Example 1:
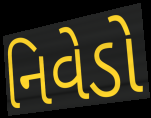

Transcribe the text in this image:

નિવેડો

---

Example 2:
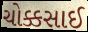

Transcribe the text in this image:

ચોક્કસાઈ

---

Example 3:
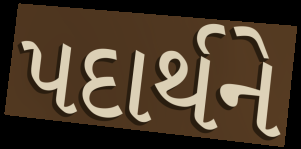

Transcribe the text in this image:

પદાર્થને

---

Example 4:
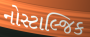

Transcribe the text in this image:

નોસ્ટાલ્જિક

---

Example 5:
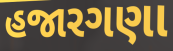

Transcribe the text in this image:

હજારગણા